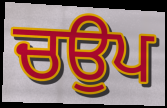
ਚਉਪ